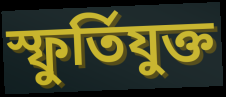
স্ফুর্তিযুক্ত